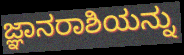
ಜ್ಞಾನರಾಶಿಯನ್ನು